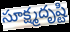
సూక్ష్మదృష్టి